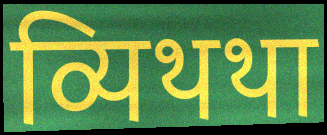
व्यिथथा